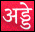
अड्डे